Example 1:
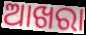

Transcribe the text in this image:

ଆଖରା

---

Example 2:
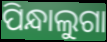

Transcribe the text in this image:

ପିନ୍ଧାଲୁଗା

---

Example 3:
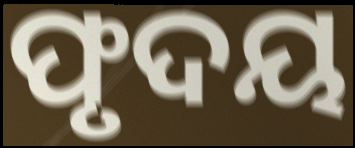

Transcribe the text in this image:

ଫୃଦୟ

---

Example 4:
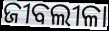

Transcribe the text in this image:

ଜୀବଲୀଳା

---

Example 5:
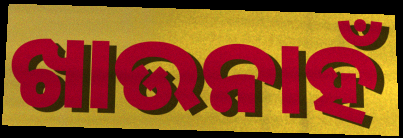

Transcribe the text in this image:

ଖାଉନାହଁ